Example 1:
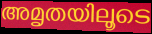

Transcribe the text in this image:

അമൃതയിലൂടെ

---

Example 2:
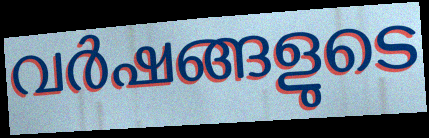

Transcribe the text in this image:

വർഷങ്ങളുടെ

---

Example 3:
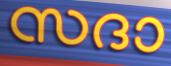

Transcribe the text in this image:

സദാ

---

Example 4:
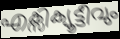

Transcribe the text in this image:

എക്സിക്യൂട്ടീവും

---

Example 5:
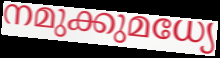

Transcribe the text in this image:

നമുക്കുമധ്യേ